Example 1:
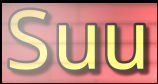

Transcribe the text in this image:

Suu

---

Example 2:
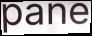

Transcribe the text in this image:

pane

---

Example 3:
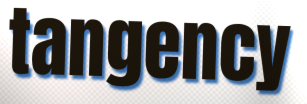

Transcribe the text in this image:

tangency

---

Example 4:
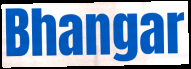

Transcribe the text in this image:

Bhangar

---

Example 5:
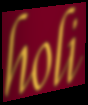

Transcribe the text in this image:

holi